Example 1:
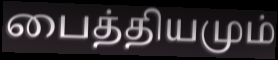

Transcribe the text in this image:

பைத்தியமும்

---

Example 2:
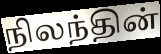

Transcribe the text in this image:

நிலந்தின்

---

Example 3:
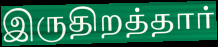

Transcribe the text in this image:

இருதிறத்தார்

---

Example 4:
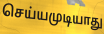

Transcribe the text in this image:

செய்யமுடியாது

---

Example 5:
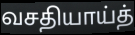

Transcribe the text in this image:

வசதியாய்த்